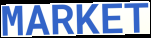
MARKET